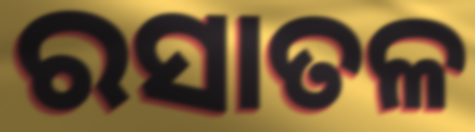
ରସାତଳ